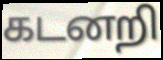
கடனறி